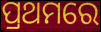
ପ୍ରଥମରେ